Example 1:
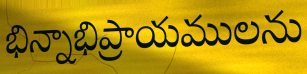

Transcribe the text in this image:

భిన్నాభిప్రాయములను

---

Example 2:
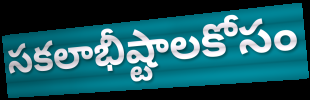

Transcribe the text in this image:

సకలాభీష్టాలకోసం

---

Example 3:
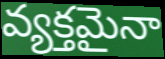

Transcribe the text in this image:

వ్యక్తమైనా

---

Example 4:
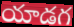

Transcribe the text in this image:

యాడగ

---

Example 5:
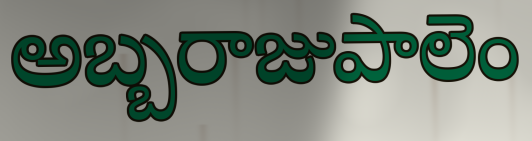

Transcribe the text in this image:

అబ్బరాజుపాలెం